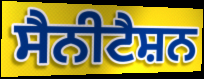
ਸੈਨੀਟੈਸ਼ਨ